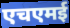
एचएमई